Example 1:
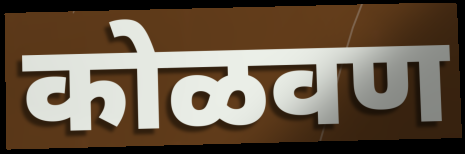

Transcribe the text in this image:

कोळवण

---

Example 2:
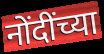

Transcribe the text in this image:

नोंदींच्या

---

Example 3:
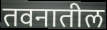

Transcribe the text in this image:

तवनातील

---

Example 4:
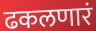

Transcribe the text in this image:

ढकलणारं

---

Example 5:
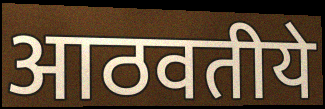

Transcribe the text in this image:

आठवतीये